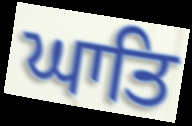
ਘਾਤਿ